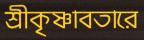
শ্রীকৃষ্ণাবতারে